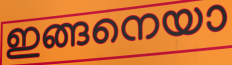
ഇങ്ങനെയാ